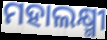
ମହାଲକ୍ଷ୍ମୀ